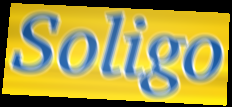
Soligo